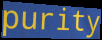
purity